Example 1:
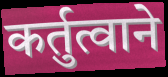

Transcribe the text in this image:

कर्तुत्वाने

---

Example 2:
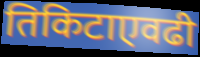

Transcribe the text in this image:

तिकिटाएवढी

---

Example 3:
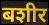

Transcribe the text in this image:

बशीर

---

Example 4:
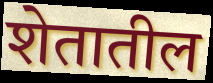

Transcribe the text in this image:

शेतातील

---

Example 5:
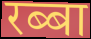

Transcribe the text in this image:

रब्बा